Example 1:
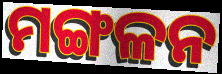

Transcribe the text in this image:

ମଙ୍ଗଳନ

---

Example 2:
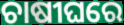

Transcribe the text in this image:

ଚାଷୀଘରେ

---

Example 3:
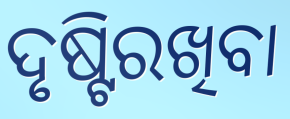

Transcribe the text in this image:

ଦୃଷ୍ଟିରଖିବା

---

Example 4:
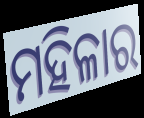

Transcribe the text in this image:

ମହିଳାର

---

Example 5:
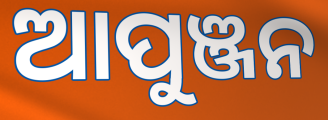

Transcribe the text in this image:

ଆପୁଞ୍ଜନ